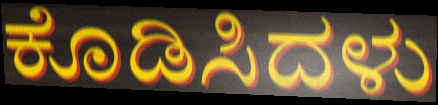
ಕೊಡಿಸಿದಳು